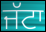
ਜੱਟਾ